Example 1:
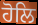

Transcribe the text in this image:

ਹੋਲਿ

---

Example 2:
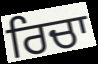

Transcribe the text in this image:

ਰਿਚਾ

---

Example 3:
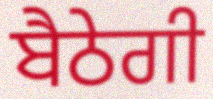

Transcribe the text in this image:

ਬੈਠੇਗੀ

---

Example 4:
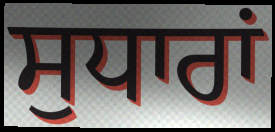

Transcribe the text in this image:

ਸੁਧਾਰਾਂ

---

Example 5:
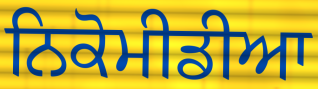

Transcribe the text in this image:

ਨਿਕੋਮੀਡੀਆ